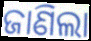
ଜାଣିଲା